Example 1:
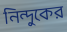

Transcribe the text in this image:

নিন্দুকের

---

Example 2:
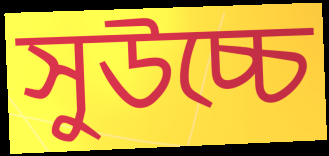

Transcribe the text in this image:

সুউচ্চে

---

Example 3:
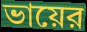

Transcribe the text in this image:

ভায়ের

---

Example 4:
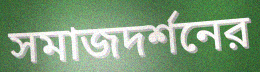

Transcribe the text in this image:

সমাজদর্শনের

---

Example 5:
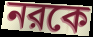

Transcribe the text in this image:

নরকে